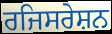
ਰਜਿਸਰੇਸ਼ਨ